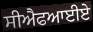
ਸੀਐਫਆਈਏ